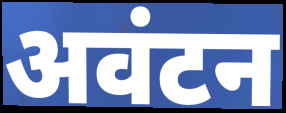
अवंटन